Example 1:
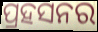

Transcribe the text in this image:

ପ୍ରହସନର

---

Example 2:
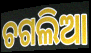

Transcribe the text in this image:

ଚଗଲିଆ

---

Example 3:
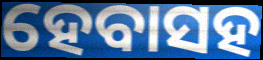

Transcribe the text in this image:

ହେବାସହ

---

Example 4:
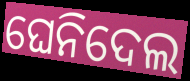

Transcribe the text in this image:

ଘେନିଦେଲ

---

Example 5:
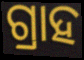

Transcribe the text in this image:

ଗ୍ରାହ